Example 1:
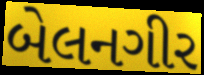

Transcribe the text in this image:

બેલનગીર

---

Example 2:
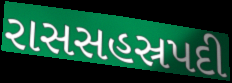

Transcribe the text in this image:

રાસસહસ્રપદી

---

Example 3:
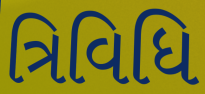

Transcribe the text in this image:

ત્રિવિધિ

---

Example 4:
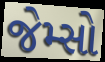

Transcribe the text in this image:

જેમ્સો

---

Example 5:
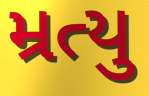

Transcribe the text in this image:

મ્રત્યુ